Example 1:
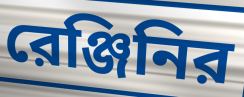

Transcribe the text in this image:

রেঞ্জিনির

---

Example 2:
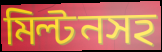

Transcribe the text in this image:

মিল্টনসহ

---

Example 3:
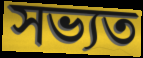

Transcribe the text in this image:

সভ্যত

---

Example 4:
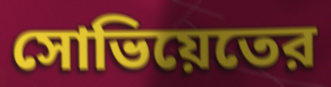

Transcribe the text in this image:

সোভিয়েতের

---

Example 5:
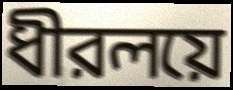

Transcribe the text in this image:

ধীরলয়ে